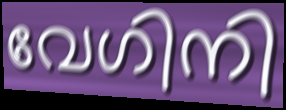
വേഗിനി